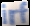
irf